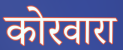
कोरवारा